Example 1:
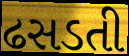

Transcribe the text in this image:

ઢસડતી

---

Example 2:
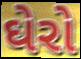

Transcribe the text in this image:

ઘેરો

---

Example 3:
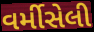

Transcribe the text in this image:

વર્મીસેલી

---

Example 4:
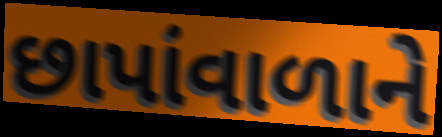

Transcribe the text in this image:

છાપાંવાળાને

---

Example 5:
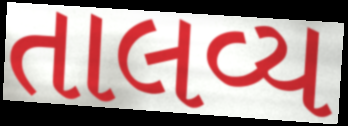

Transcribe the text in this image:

તાલવ્ય